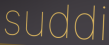
suddi